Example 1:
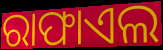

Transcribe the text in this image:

ରାଫାଏଲ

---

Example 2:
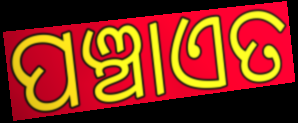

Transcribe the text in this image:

ପଞ୍ଚାଏତ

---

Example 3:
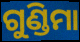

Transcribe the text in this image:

ଗୁଣ୍ଡିମା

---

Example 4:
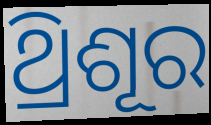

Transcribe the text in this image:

ଥ୍ରିଶୂର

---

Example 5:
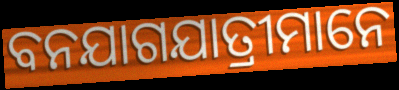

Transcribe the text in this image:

ବନଯାଗଯାତ୍ରୀମାନେ